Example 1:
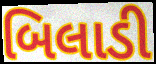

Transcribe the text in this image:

બિલાડી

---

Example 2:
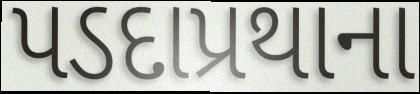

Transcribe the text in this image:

પડદાપ્રથાના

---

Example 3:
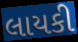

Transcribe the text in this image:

લાયકી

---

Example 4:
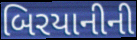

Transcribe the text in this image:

બિરયાનીની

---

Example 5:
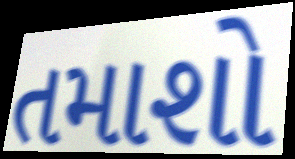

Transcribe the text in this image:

તમાશો